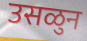
उसळुन